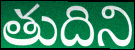
తుదిని